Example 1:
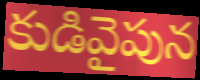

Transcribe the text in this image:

కుడివైపున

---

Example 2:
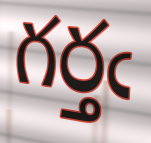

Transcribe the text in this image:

గర్తఁ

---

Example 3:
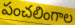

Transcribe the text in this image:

పంచలింగాల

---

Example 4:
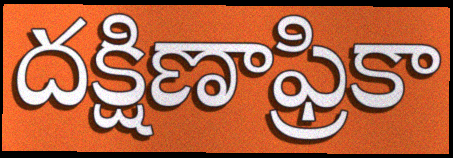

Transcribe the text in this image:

దక్షిణాఫ్రికా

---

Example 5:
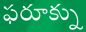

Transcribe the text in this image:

ఫరూక్ను